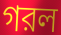
গরল